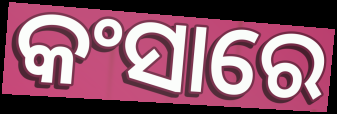
କଂସାରେ